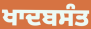
ਖਾਦਬਸੰਤ